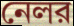
নেলর